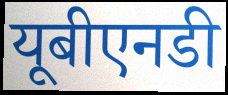
यूबीएनडी